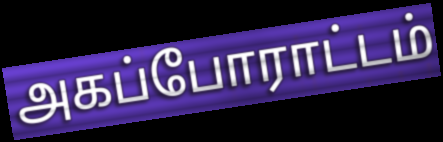
அகப்போராட்டம்